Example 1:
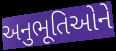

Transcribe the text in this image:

અનુભૂતિઓને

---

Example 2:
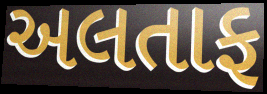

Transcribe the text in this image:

અલતાફ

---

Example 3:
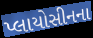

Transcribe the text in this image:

પ્લાયોસીનના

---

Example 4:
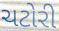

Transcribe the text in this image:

ચટોરી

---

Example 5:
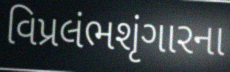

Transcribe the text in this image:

વિપ્રલંભશૃંગારના